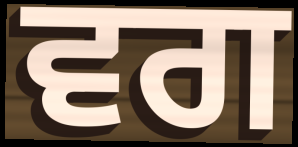
ਵਗ